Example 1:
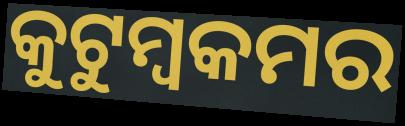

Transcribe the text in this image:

କୁଟୁମ୍ବକମର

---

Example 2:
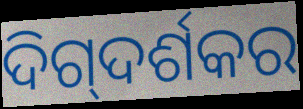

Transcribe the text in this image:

ଦିଗ୍‍ଦର୍ଶକର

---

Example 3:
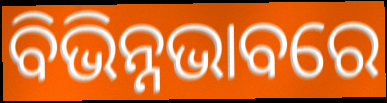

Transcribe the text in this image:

ବିଭିନ୍ନଭାବରେ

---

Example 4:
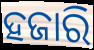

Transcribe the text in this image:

ହଜାରି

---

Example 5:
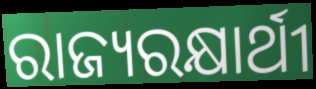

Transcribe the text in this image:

ରାଜ୍ୟରକ୍ଷାର୍ଥୀ